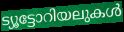
ട്യൂട്ടോറിയലുകൾ